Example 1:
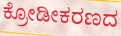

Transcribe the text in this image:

ಕ್ರೋಡೀಕರಣದ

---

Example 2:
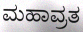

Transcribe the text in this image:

ಮಹಾವ್ರತ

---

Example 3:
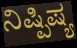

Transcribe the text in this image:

ನಿಷ್ಪಿಷ್ಯ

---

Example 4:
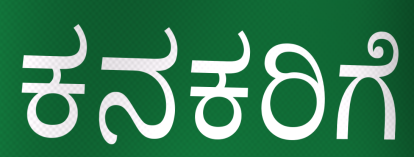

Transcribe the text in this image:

ಕನಕರಿಗೆ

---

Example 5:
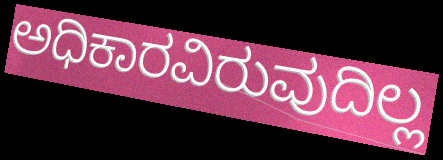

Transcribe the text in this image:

ಅಧಿಕಾರವಿರುವುದಿಲ್ಲ